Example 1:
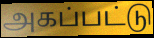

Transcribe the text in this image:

அகப்பட்டு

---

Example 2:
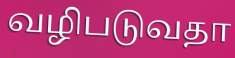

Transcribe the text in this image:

வழிபடுவதா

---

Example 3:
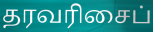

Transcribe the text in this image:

தரவரிசைப்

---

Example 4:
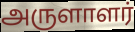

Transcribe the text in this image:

அருளாளர்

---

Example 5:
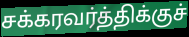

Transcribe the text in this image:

சக்கரவர்த்திக்குச்